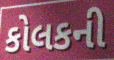
કોલકની